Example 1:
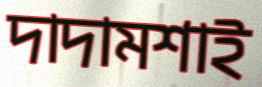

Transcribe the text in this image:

দাদামশাই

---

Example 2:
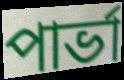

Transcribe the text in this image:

পার্ভা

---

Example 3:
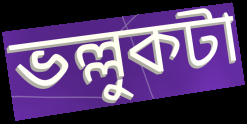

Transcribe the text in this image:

ভল্লুকটা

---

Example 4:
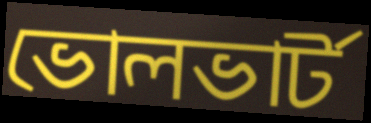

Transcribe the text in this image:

ভোলভার্ট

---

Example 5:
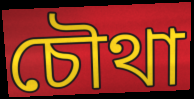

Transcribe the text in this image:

চৌথা